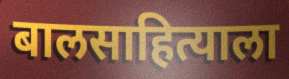
बालसाहित्याला